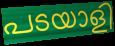
പടയാളി